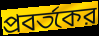
প্রবর্তকের